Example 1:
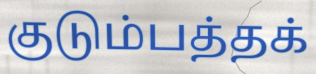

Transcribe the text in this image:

குடும்பத்தக்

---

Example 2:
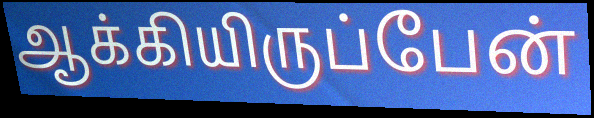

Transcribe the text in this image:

ஆக்கியிருப்பேன்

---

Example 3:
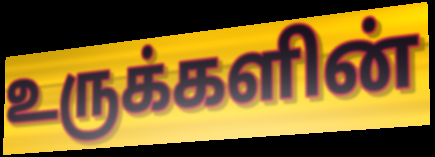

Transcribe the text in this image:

உருக்களின்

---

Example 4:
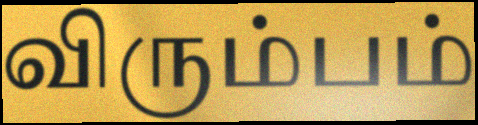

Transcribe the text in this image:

விரும்பம்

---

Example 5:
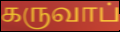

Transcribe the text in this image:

கருவாப்